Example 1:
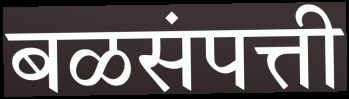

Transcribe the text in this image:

बळसंपत्ती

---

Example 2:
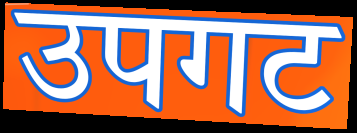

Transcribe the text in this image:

उपगट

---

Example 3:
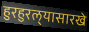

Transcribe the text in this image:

हुरहुरल्यासारखे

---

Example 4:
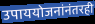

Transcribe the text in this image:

उपाययोजनांनंतरही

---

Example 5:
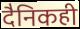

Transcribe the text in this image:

दैनिकही